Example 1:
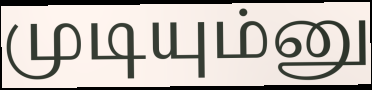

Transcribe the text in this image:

முடியும்னு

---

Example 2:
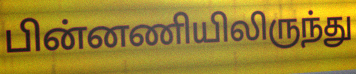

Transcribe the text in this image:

பின்னணியிலிருந்து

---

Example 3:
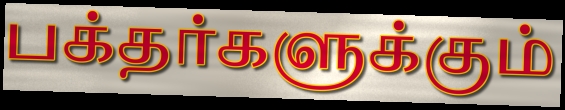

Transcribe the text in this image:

பக்தர்களுக்கும்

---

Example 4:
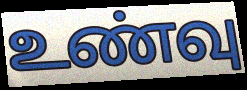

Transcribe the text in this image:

உண்வு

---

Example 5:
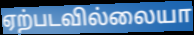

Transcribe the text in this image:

ஏற்படவில்லையா